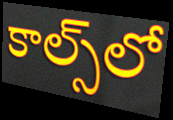
కాల్స్‌లో